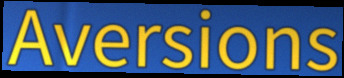
Aversions